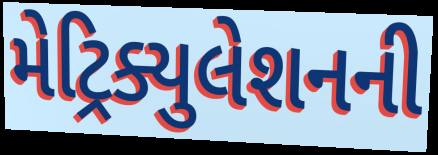
મેટ્રિક્યુલેશનની